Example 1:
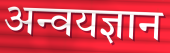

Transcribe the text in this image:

अन्वयज्ञान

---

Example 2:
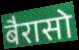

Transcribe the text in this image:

बैरासो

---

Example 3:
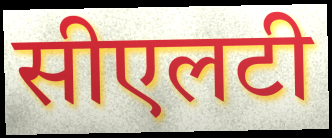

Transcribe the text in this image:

सीएलटी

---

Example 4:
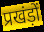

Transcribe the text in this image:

प्रखंड़ों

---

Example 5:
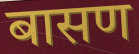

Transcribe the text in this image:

बासण